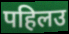
पहिलउ